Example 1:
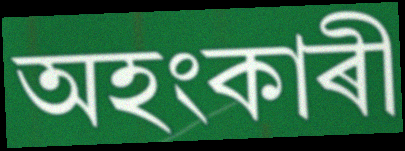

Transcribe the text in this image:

অহংকাৰী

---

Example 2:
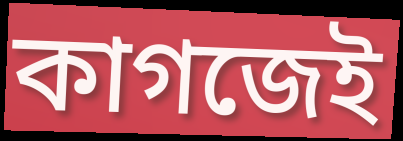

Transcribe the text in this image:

কাগজেই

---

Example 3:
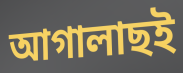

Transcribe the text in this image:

আগালাছই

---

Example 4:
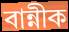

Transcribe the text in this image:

বান্নীক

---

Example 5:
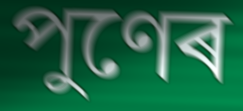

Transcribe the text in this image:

পুণেৰ